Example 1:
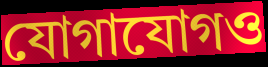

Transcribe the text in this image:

যোগাযোগও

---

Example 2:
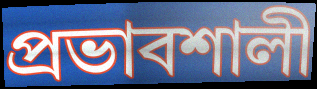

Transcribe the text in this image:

প্রভাবশালী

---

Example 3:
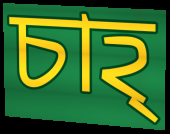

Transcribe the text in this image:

চাহ্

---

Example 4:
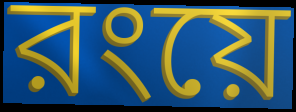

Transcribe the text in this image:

রংয়ে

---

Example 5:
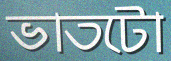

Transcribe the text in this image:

ভাতটো